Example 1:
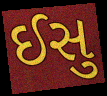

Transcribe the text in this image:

ઈસુ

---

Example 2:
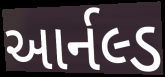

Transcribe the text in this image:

આર્નલ્ડ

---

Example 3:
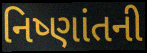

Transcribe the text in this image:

નિષ્ણાંતની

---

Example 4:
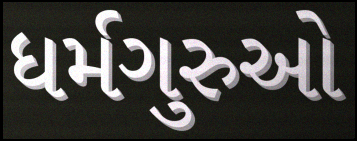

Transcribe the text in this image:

ધર્મગુરુઓ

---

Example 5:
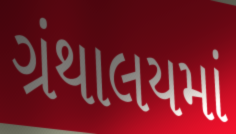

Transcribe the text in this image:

ગ્રંથાલયમાં